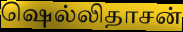
ஷெல்லிதாசன்